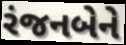
રંજનબેને